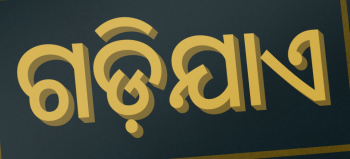
ଗଡ଼ିଯାଏ